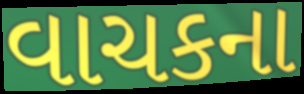
વાચકના